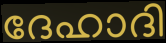
ദേഹാദി